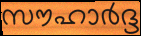
സൗഹാർദ്ദ